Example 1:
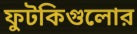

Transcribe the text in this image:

ফুটকিগুলোর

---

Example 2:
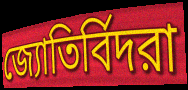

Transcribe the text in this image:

জ্যোতির্বিদরা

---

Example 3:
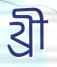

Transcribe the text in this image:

থ্রী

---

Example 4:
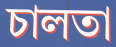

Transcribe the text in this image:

চালতা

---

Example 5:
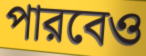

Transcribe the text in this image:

পারবেও